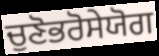
ਚੁਣੋਭਰੋਸੇਯੋਗ